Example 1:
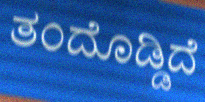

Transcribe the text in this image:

ತಂದೊಡ್ಡಿದೆ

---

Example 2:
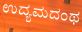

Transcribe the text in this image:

ಉದ್ಯಮದಂಥ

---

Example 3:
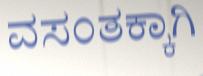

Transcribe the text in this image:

ವಸಂತಕ್ಕಾಗಿ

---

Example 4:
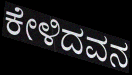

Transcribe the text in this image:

ಕೇಳಿದವನ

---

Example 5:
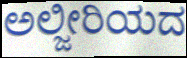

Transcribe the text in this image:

ಅಲ್ಜೀರಿಯದ